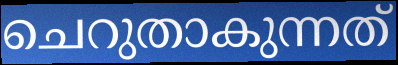
ചെറുതാകുന്നത്